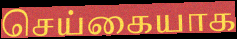
செய்கையாக